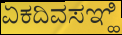
ಏಕದಿವಸಞ್ಹಿ